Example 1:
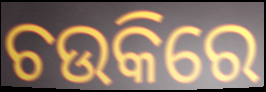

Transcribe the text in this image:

ଚଉକିରେ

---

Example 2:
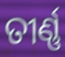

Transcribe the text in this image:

ତୀର୍ଣ୍ଣ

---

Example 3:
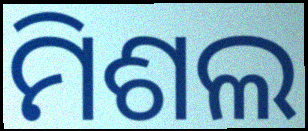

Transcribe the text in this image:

ମିଶଲ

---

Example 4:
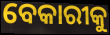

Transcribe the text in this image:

ବେକାରୀକୁ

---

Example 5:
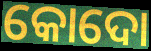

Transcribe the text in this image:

କୋଦୋ